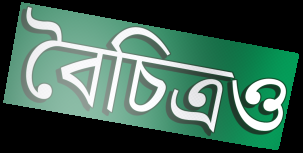
বৈচিত্রও